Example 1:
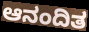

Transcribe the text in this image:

ಆನಂದಿತ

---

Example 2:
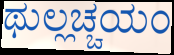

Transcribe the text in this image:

ಥುಲ್ಲಚ್ಚಯಂ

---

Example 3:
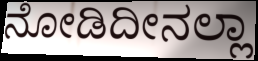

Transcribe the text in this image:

ನೋಡಿದೀನಲ್ಲಾ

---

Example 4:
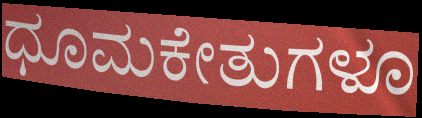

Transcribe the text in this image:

ಧೂಮಕೇತುಗಳೂ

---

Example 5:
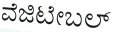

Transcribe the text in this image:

ವೆಜಿಟೇಬಲ್